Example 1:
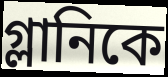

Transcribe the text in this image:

গ্লানিকে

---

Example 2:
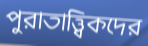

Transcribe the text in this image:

পুরাতাত্ত্বিকদের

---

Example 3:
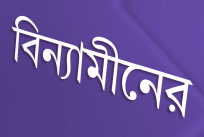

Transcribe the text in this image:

বিন্যামীনের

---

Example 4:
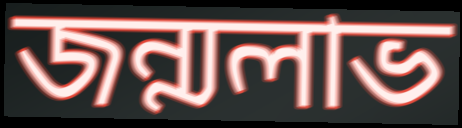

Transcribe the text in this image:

জন্মলাভ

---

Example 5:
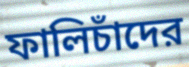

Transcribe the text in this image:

ফালিচাঁদের